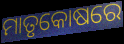
ମାତୃକୋଷରେ